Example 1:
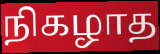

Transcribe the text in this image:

நிகழாத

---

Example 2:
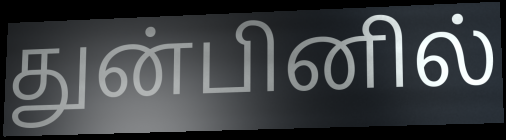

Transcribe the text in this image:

துன்பினில்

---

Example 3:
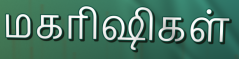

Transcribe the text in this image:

மகரிஷிகள்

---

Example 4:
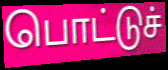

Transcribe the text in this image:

பொட்டுச்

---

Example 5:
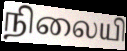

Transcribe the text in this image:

நிலையி